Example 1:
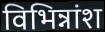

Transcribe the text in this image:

विभिन्नांश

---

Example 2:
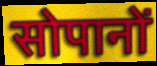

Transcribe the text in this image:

सोपानों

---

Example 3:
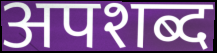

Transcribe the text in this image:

अपशब्द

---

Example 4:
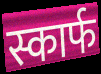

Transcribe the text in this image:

स्कार्फ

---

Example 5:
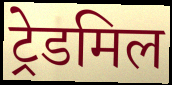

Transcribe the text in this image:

ट्रेडमिल